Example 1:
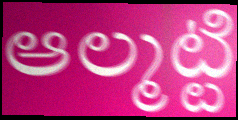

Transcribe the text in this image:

ఆల్మట్టి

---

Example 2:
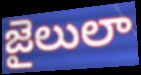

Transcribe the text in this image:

జైలులా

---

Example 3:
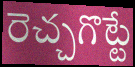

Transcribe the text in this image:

రెచ్చగొట్టే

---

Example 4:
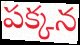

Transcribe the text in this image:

పక్కన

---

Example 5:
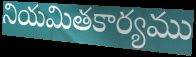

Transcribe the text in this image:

నియమితకార్యము